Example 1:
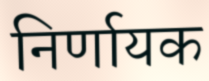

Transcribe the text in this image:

निर्णायक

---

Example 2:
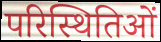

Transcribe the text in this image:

परिस्थितिओं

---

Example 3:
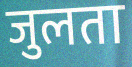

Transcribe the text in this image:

जुलता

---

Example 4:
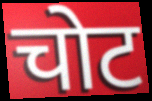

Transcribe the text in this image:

चोट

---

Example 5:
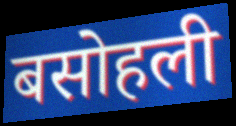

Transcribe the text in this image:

बसोहली